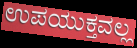
ಉಪಯುಕ್ತವಲ್ಲ